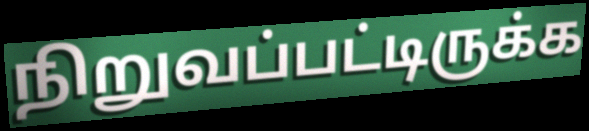
நிறுவப்பட்டிருக்க